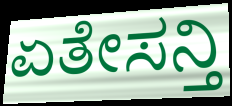
ಏತೇಸನ್ತಿ